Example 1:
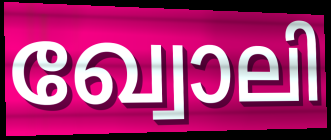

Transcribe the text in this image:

ഖ്വോലി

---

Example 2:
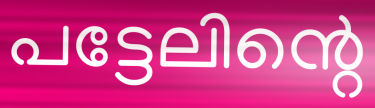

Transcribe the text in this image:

പട്ടേലിന്റെ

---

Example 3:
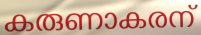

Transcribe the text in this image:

കരുണാകരന്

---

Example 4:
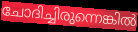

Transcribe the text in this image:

ചോദിച്ചിരുന്നെങ്കിൽ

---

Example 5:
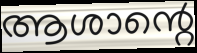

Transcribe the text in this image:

ആശാന്റെ